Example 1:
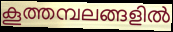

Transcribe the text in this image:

കൂത്തമ്പലങ്ങളിൽ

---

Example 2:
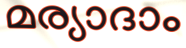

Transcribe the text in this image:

മര്യാദാം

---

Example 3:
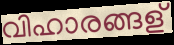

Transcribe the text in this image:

വിഹാരങ്ങള്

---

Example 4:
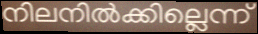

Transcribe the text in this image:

നിലനിൽക്കില്ലെന്ന്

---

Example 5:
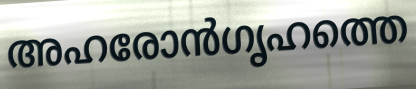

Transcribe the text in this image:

അഹരോൻഗൃഹത്തെ